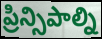
ప్రిన్సిపాల్ని